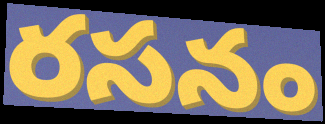
రసనం